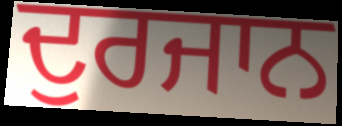
ਦੁਰਜਾਨ